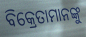
ବିକ୍ରେତାମାନଙ୍କୁ